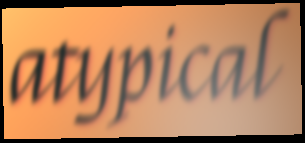
atypical